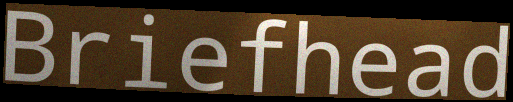
Briefhead